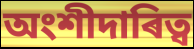
অংশীদাৰিত্ব